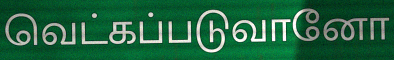
வெட்கப்படுவானோ